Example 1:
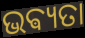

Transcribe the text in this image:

ଭଵ୍ୟତା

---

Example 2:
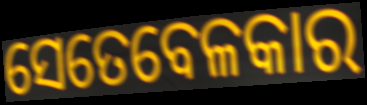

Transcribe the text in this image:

ସେତେବେଳକାର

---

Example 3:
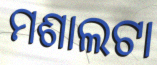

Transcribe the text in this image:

ମଶାଲଟା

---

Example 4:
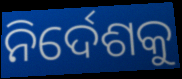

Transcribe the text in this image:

ନିର୍ଦେଶକୁ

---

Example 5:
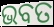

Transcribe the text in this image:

ଭବତ